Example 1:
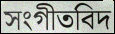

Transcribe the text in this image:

সংগীতবিদ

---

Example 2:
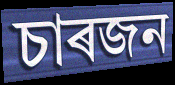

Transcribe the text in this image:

চাৰজন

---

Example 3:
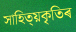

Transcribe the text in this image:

সাহিত্য়কৃতিৰ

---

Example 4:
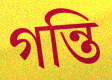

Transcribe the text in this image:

গন্তি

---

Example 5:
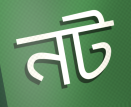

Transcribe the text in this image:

নট